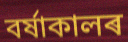
বৰ্ষাকালৰ